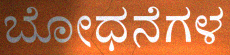
ಬೋಧನೆಗಳ